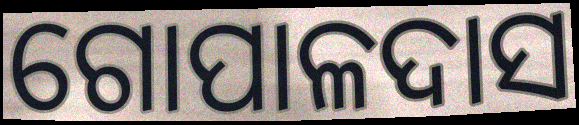
ଗୋପାଳଦାସ